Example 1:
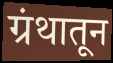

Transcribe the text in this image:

ग्रंथातून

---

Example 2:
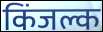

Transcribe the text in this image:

किंजल्क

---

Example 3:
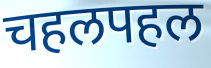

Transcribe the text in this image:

चहलपहल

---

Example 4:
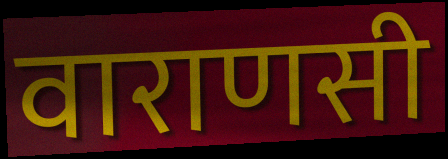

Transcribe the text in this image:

वाराणसी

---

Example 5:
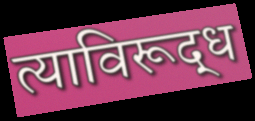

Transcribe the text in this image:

त्याविरूद्ध